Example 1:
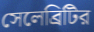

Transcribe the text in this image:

সেলেব্রিটির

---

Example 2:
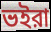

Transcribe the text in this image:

ভইরা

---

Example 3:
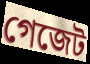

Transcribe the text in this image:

গেজেট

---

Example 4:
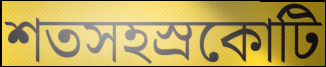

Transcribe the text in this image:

শতসহস্রকোটি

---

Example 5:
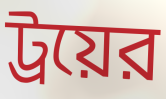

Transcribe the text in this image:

ট্রয়ের